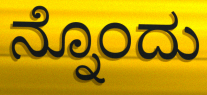
ನ್ನೊಂದು